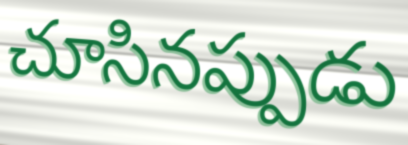
చూసినప్పుడు